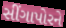
સીંગાપોરને